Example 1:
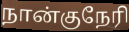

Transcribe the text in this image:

நான்குநேரி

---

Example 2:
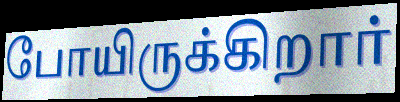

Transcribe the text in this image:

போயிருக்கிறார்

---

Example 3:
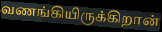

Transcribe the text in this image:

வணங்கியிருக்கிறான்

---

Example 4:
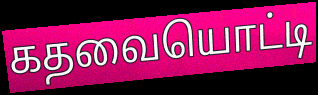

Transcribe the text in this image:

கதவையொட்டி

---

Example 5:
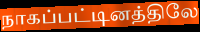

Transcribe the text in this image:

நாகப்பட்டினத்திலே